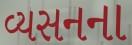
વ્યસનના